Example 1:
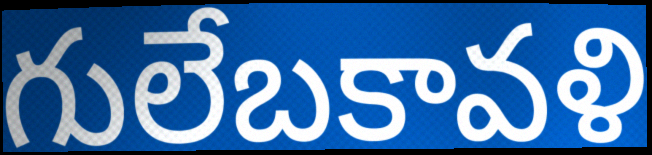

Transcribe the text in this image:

గులేబకావళి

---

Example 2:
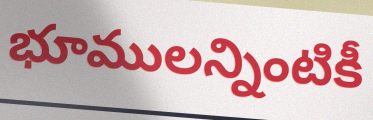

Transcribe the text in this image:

భూములన్నింటికీ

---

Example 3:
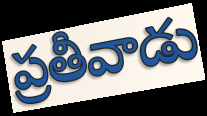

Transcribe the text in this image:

ప్రతీవాడు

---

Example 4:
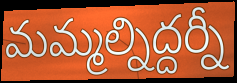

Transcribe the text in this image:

మమ్మల్నిద్దర్నీ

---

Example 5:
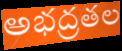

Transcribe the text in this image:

అభద్రతల